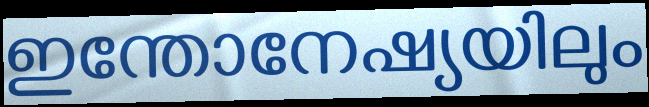
ഇന്തോനേഷ്യയിലും